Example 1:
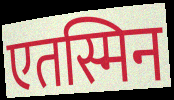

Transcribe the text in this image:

एतस्मिन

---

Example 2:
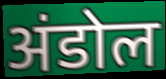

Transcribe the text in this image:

अंडोल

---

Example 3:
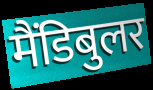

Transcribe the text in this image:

मैंडिबुलर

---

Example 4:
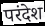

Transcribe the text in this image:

परंदेश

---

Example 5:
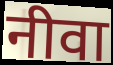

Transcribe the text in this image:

नीवा